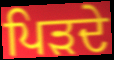
ਪਿੜਦੇ